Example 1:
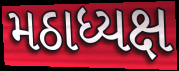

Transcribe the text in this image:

મઠાધ્યક્ષ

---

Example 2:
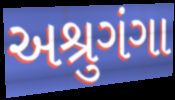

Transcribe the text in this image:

અશ્રુગંગા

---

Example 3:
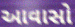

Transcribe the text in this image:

આવાસો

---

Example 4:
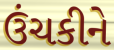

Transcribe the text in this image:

ઉંચકીને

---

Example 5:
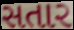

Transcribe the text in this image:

સતાર